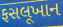
ફસલૂખાન